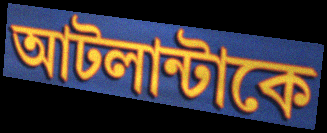
আটলান্টাকে